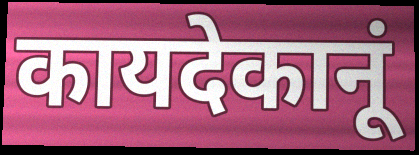
कायदेकानूं